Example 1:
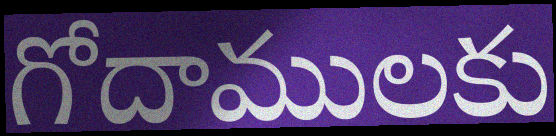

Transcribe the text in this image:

గోదాములకు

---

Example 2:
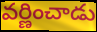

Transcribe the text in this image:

వర్ణించాడు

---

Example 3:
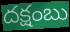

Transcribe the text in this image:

దక్షంబు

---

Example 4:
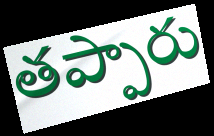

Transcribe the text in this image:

తప్పారు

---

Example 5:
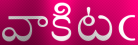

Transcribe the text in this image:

వాకిటఁ